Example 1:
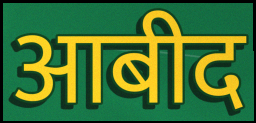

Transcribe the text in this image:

आबीद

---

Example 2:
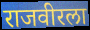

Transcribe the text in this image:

राजवीरला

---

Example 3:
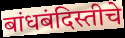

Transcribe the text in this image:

बांधबंदिस्तीचे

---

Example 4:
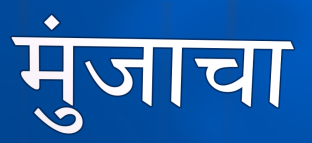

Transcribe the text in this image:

मुंजाचा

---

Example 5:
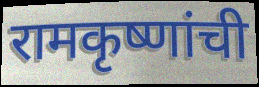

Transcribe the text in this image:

रामकृष्णांची